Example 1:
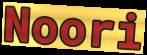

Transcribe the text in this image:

Noori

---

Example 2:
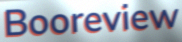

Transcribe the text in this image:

Booreview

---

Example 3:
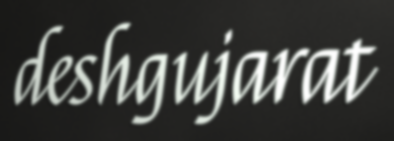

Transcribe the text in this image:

deshgujarat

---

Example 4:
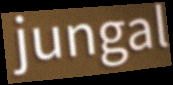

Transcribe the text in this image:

jungal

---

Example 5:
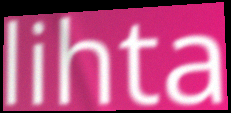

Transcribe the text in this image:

lihta